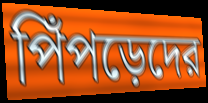
পিঁপড়েদের